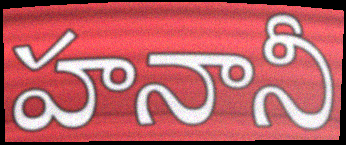
హనానీ